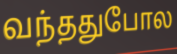
வந்ததுபோல